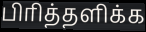
பிரித்தளிக்க